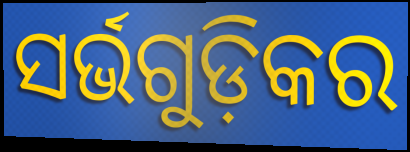
ସର୍ଭଗୁଡ଼ିକର